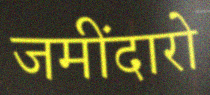
जमींदारो